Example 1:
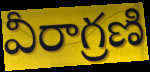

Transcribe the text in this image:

వీరాగ్రణి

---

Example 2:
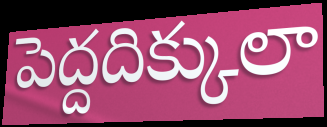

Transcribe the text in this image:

పెద్దదిక్కులా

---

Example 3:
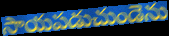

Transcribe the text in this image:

సాయపడుచుండెను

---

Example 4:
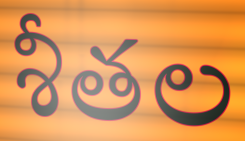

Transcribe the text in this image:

శీతల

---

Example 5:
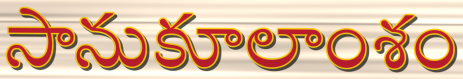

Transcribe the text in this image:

సానుకూలాంశం